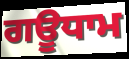
ਗਊਧਾਮ